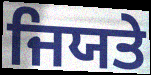
ਜਿਯਤੇ